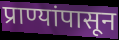
प्राण्यांपासून